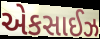
એકસાઈઝ